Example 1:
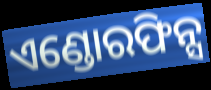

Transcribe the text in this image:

ଏଣ୍ଡୋରଫିନ୍ସ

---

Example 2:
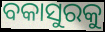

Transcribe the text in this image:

ବକାସୁରକୁ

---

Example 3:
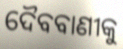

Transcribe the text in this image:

ଦୈବବାଣୀକୁ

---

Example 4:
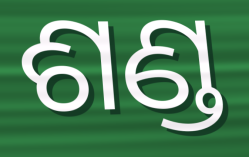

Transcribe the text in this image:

ଶଣ୍ଡ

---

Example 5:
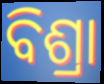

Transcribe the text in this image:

ବିଶ୍ରା